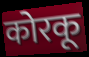
कोरकू